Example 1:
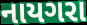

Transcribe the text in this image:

નાયગરા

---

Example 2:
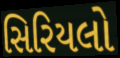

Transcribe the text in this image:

સિરિયલો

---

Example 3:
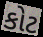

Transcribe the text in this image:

કોટ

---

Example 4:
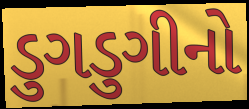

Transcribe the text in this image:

ડુગડુગીનો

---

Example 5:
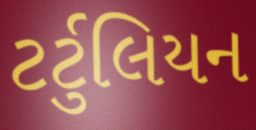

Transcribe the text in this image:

ટર્ટુલિયન